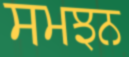
ਸਮਝਨ